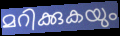
മറിക്കുകയും